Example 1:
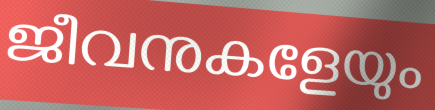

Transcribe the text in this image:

ജീവനുകളേയും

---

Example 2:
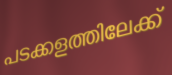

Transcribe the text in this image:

പടക്കളത്തിലേക്ക്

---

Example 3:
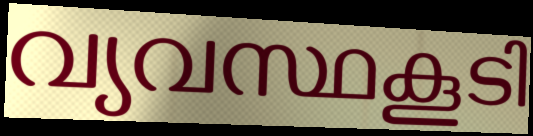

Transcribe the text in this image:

വ്യവസ്ഥകൂടി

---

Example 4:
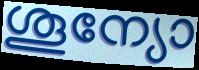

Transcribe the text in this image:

ശൂന്യോ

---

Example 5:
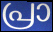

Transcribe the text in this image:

പ്രാ